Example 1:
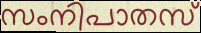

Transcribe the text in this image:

സംനിപാതസ്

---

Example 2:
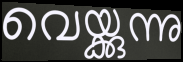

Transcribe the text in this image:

വെയ്ക്കുന്നു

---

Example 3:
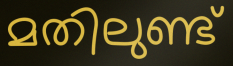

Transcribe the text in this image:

മതിലുണ്ട്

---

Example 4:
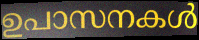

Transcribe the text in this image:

ഉപാസനകൾ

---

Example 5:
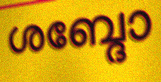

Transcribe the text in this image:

ശബ്ദോ